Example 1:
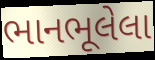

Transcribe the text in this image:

ભાનભૂલેલા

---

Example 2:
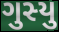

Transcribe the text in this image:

ગુસ્યુ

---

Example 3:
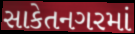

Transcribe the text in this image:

સાકેતનગરમાં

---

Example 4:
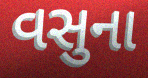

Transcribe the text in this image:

વસુના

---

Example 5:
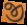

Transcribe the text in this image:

જી